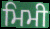
ਮਿਮੀ